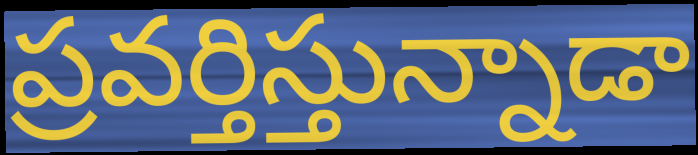
ప్రవర్తిస్తున్నాడా